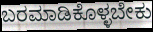
ಬರಮಾಡಿಕೊಳ್ಳಬೇಕು